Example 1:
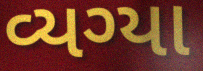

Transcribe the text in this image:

વ્યગ્યા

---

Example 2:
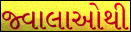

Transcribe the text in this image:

જ્વાલાઓથી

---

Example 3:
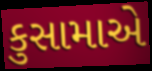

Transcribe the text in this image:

કુસામાએ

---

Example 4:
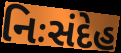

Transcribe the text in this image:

નિઃસંદેહ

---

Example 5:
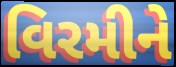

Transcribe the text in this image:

વિરમીને